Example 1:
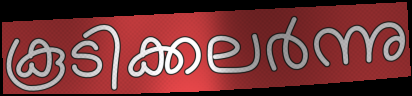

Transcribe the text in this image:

കൂടിക്കലർന്നു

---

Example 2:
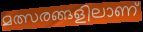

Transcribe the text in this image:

മത്സരങ്ങളിലാണ്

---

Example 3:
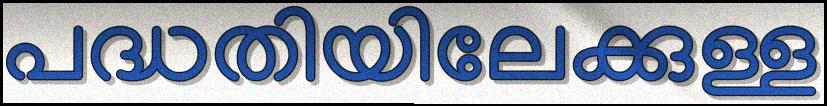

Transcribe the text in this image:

പദ്ധതിയിലേക്കുള്ള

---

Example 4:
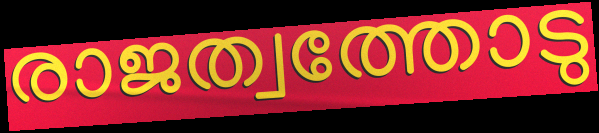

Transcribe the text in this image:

രാജത്വത്തോടു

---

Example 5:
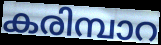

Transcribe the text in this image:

കരിമ്പാറ